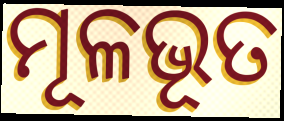
ମୂଳଭୂତ